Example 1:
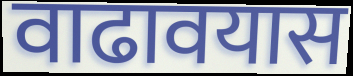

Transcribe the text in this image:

वाढावयास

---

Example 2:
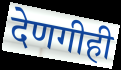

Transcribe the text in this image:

देणगीही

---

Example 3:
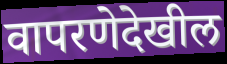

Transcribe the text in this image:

वापरणेदेखील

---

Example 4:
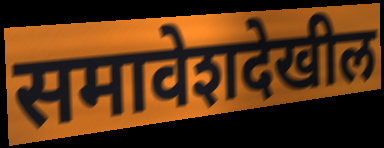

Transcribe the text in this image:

समावेशदेखील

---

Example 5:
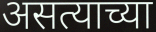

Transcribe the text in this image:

असत्याच्या